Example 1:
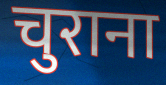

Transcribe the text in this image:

चुराना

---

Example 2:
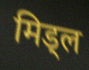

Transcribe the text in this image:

मिड्ल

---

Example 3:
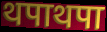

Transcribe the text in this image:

थपाथपा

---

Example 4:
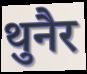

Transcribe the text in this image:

थुनैर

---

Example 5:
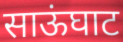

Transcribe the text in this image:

साऊंघाट